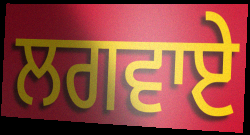
ਲਗਵਾਏ